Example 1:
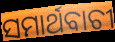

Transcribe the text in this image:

ସମାର୍ଥବାଚୀ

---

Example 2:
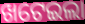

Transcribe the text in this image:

ଖଟେଇଲା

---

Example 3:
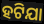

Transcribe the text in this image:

ହଟିଯା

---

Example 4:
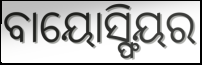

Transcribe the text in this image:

ବାୟୋସ୍ଫିୟର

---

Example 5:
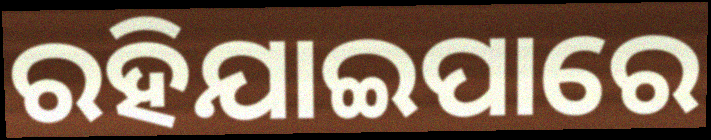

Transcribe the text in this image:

ରହିଯାଇପାରେ